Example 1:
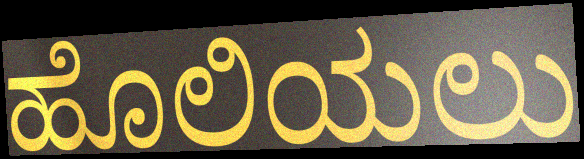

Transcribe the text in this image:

ಹೊಲಿಯಲು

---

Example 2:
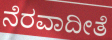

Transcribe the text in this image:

ನೆರವಾದೀತೆ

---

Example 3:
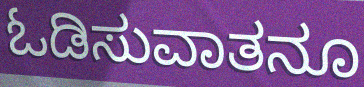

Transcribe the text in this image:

ಓಡಿಸುವಾತನೂ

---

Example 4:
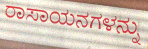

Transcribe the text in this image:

ರಾಸಾಯನಗಳನ್ನು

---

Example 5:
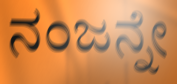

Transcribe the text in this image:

ನಂಜನ್ನೇ